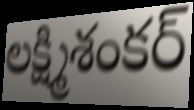
లక్ష్మిశంకర్